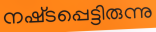
നഷ്‌ടപ്പെട്ടിരുന്നു